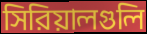
সিরিয়ালগুলি